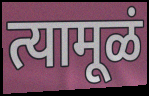
त्यामूळं